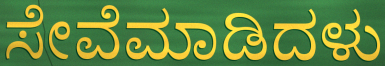
ಸೇವೆಮಾಡಿದಳು